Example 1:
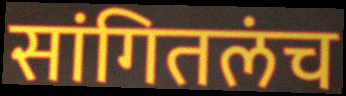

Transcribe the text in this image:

सांगितलंच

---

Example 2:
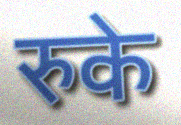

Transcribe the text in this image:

रुके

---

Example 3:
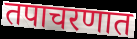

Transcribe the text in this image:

तपाचरणात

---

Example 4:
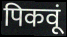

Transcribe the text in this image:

पिकवूं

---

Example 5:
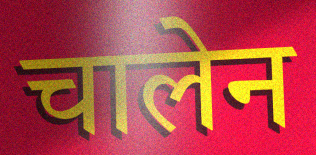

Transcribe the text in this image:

चालेन